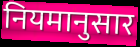
नियमानुसार